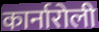
कार्नारोली